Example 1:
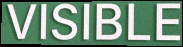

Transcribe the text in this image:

VISIBLE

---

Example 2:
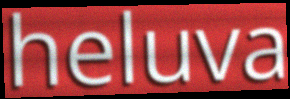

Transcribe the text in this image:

heluva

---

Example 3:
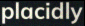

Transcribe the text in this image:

placidly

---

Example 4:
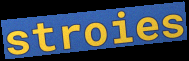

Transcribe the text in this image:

stroies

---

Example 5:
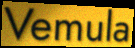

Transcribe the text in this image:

Vemula